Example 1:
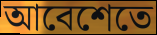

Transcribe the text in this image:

আবেশেতে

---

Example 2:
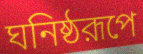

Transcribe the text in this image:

ঘনিষ্ঠরূপে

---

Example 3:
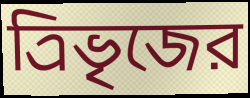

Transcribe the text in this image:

ত্রিভৃজের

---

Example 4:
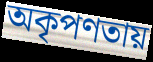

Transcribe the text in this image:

অকৃপণতায়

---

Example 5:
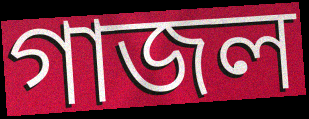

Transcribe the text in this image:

গাজল